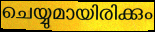
ചെയ്യുമായിരിക്കും